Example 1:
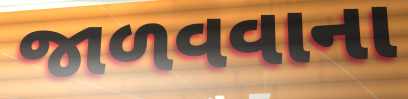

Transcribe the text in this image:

જાળવવાના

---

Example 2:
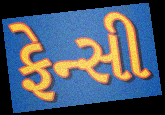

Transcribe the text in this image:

ફેન્સી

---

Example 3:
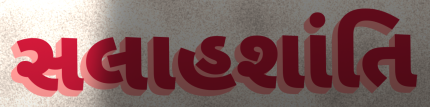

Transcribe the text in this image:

સલાહશાંતિ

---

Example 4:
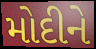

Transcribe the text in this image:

મોદીને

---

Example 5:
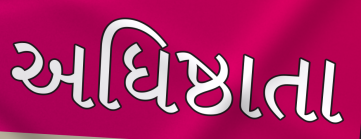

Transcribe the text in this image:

અધિષ્ઠાતા